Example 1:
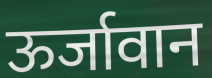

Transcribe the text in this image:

ऊर्जावान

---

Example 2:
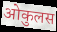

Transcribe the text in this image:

ओकुलस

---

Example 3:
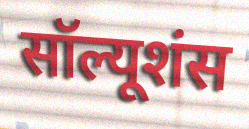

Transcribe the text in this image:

सॉल्यूशंस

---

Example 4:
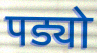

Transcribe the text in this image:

पड्यो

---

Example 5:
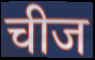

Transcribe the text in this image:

चीज